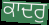
ਕਾਦਰੁ